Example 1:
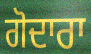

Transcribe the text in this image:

ਗੋਦਾਰਾ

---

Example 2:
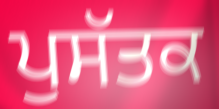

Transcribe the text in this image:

ਪੁਸੱਤਕ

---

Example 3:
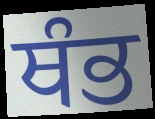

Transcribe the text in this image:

ਥੰਭ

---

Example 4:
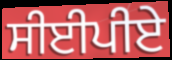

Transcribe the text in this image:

ਸੀਈਪੀਏ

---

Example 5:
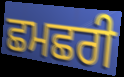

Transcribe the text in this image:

ਛਮਛਰੀ